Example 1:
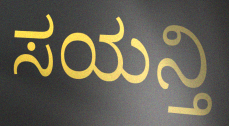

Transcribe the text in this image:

ಸಯನ್ತಿ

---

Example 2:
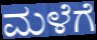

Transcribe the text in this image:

ಮಳೆಗೆ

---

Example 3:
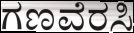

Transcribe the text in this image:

ಗಣವೆರಸಿ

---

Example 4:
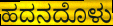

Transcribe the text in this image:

ಹದನದೊಳು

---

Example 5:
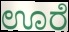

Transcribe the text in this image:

ಊರೆ